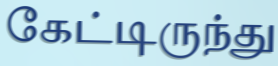
கேட்டிருந்து